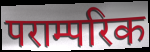
पराम्परिक